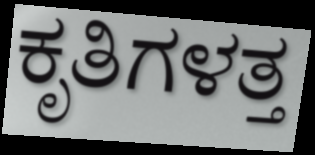
ಕೃತಿಗಳತ್ತ